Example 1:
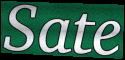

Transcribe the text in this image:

Sate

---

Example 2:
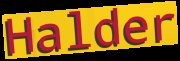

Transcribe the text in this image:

Halder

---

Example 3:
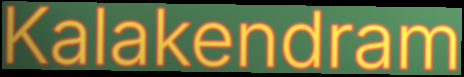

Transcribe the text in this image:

Kalakendram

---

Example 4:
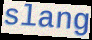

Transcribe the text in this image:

slang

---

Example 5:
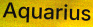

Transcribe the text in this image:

Aquarius